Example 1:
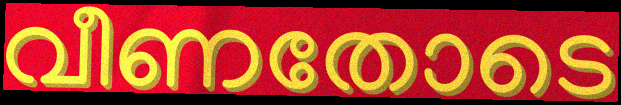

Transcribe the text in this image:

വീണതോടെ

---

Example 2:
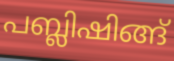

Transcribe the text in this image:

പബ്ലിഷിങ്ങ്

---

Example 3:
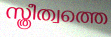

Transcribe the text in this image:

സ്ത്രീത്വത്തെ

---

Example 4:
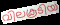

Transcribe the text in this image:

വിലകൂടിയ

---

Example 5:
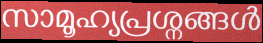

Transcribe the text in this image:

സാമൂഹ്യപ്രശ്നങ്ങൾ